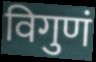
विगुणं